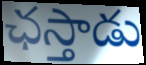
ఛస్తాడు